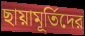
ছায়ামূর্তিদের